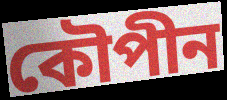
কৌপীন